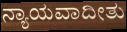
ನ್ಯಾಯವಾದೀತು